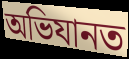
অভিযানত